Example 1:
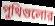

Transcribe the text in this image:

পুথিগুলোর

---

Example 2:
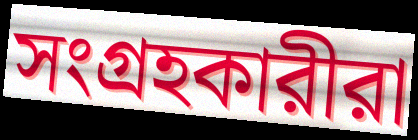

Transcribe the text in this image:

সংগ্রহকারীরা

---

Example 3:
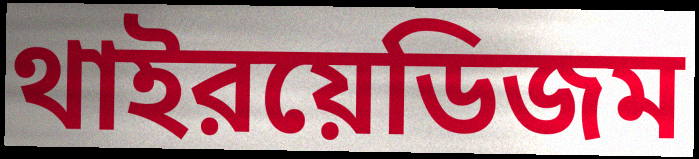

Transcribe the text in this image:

থাইরয়েডিজম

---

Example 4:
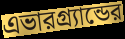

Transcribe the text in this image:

এভারগ্র্যান্ডের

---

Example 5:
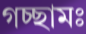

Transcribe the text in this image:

গচ্ছামঃ